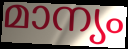
മാന്യം